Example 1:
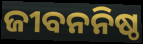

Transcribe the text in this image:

ଜୀବନନିଷ୍ଠ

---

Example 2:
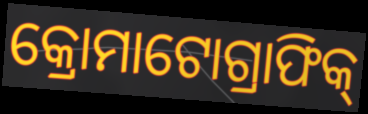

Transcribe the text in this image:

କ୍ରୋମାଟୋଗ୍ରାଫିକ୍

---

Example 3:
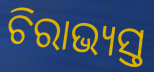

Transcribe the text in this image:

ଚିରାଭ୍ୟସ୍ତ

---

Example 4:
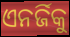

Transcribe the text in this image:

ଏନର୍ଜିକୁ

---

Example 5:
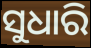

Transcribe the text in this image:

ସୁଧାରି